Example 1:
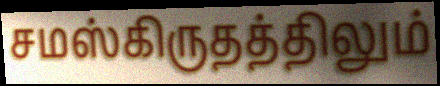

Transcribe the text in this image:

சமஸ்கிருதத்திலும்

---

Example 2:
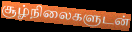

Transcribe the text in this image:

சூழ்நிலைகளுடன்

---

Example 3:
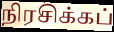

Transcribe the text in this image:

நிரசிக்கப்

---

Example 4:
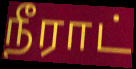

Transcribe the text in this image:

நீராட்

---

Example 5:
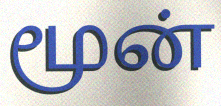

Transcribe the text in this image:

மூன்